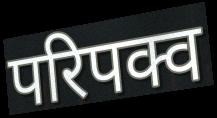
परिपक्व